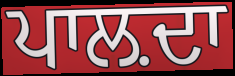
ਪਾਲ਼ਦਾ